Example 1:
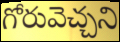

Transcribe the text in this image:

గోరువెచ్చని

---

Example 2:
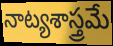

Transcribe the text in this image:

నాట్యశాస్త్రమే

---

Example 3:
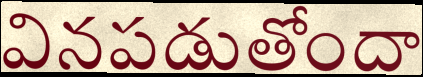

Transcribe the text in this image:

వినపడుతోందా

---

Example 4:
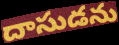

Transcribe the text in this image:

దాసుడను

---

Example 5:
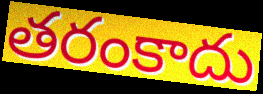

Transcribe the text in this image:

తరంకాదు